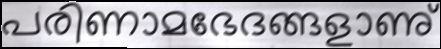
പരിണാമഭേദങ്ങളാണു്